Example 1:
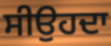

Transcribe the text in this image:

ਸੀਉਹਦਾ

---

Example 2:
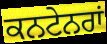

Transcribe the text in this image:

ਕਨਟੇਨਰਾਂ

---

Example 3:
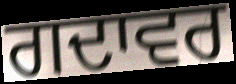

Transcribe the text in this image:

ਗਦਾਵਰ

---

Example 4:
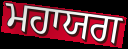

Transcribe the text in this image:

ਮਹਾਯਗ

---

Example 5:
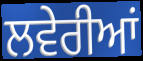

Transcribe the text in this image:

ਲਵੇਰੀਆਂ